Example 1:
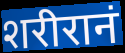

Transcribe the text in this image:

शरीरानं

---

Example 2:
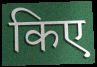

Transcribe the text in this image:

किए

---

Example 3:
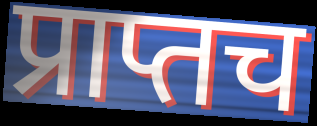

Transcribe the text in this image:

प्राप्तच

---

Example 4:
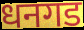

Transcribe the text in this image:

धनगड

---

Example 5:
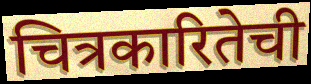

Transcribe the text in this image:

चित्रकारितेची